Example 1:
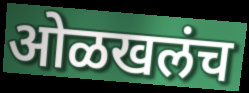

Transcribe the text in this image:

ओळखलंच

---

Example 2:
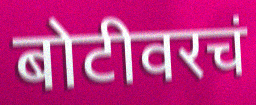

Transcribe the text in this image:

बोटीवरचं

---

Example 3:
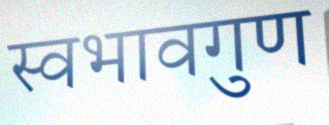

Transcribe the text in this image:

स्वभावगुण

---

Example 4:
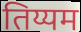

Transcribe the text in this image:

तिय्यम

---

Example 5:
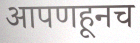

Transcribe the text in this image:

आपणहूनच